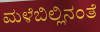
ಮಳೆಬಿಲ್ಲಿನಂತೆ